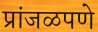
प्रांजळपणे